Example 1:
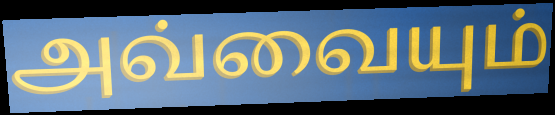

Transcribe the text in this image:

அவ்வையும்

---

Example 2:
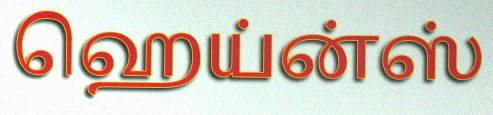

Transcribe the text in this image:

ஹெய்ன்ஸ்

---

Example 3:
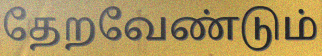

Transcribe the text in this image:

தேறவேண்டும்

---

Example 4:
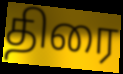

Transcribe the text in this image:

திரை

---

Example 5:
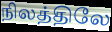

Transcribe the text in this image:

நிலத்திலே